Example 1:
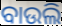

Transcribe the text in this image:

ବାଉଲି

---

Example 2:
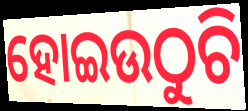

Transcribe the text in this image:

ହୋଇଉଠୁଚି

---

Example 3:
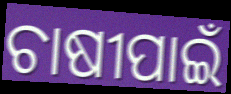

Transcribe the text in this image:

ଚାଷୀପାଇଁ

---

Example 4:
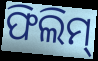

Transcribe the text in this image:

ଫିଲିମ୍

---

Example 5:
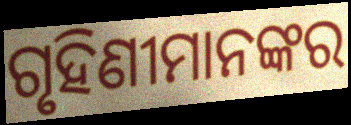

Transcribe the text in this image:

ଗୃହିଣୀମାନଙ୍କର